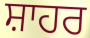
ਸ਼ਾਹਰ